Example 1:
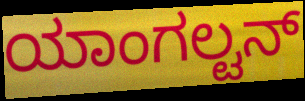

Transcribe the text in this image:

ಯಾಂಗಲ್ಟನ್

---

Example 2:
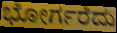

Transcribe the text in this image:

ಭೋರ್ಗರೆದು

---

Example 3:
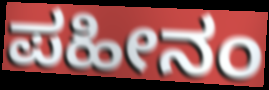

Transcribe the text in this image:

ಪಹೀನಂ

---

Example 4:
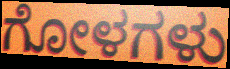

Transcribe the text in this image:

ಗೋಳಗಳು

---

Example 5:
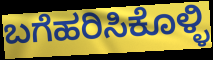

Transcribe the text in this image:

ಬಗೆಹರಿಸಿಕೊಳ್ಳಿ